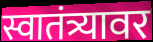
स्वातंत्र्यावर